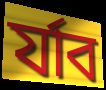
র্যাব